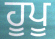
ਹੂਪੂ